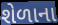
શેળાના